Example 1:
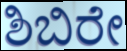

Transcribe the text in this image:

ಶಿಬಿರೇ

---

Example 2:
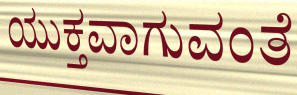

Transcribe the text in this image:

ಯುಕ್ತವಾಗುವಂತೆ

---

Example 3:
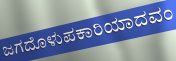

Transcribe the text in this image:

ಜಗದೊಳುಪಕಾರಿಯಾದವಂ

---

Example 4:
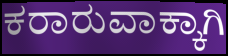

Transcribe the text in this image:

ಕರಾರುವಾಕ್ಕಾಗಿ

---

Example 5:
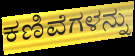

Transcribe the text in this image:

ಕಣಿವೆಗಳನ್ನು